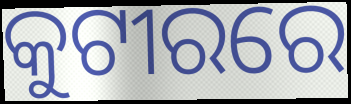
କୁଟୀରରେ